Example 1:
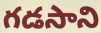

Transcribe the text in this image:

గడసాని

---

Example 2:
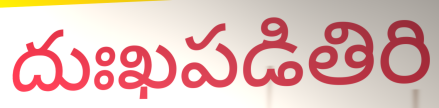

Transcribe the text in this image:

దుఃఖపడితిరి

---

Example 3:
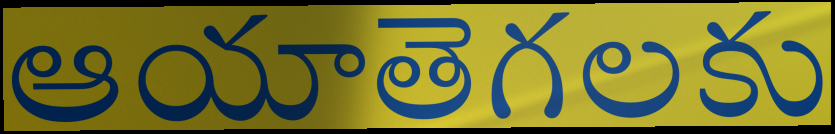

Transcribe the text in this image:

ఆయాతెగలకు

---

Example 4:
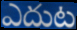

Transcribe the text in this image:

ఎదుట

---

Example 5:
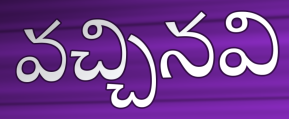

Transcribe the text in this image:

వచ్చినవి